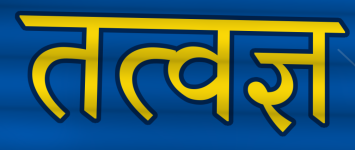
तत्वज्ञ